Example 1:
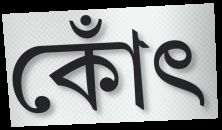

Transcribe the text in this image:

কোঁৎ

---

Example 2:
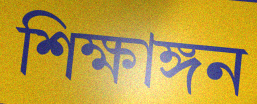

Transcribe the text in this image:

শিক্ষাঙ্গন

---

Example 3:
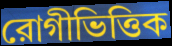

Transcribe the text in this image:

রোগীভিত্তিক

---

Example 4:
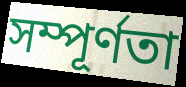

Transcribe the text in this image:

সম্পূর্ণতা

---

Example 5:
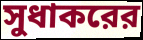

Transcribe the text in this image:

সুধাকরের